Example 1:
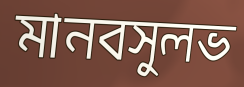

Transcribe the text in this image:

মানবসুলভ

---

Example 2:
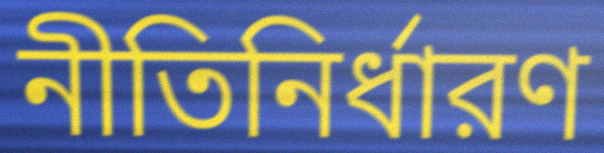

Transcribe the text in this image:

নীতিনির্ধারণ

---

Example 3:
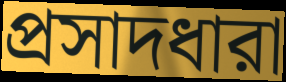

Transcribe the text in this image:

প্রসাদধারা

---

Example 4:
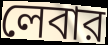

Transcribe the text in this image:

লেবার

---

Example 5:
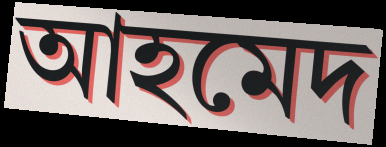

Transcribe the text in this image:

আহমেদ